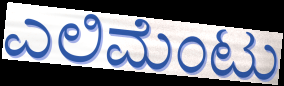
ಎಲಿಮೆಂಟು